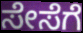
ಸೇಸೆಗೆ